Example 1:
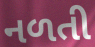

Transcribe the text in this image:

નળતી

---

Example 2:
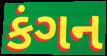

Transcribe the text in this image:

કંગન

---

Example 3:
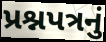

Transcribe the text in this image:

પ્રશ્નપત્રનું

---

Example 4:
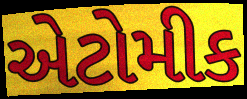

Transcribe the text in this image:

એટોમીક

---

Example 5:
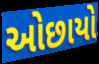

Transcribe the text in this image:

ઓછાયો